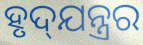
ହୃଦ୍‍ଯନ୍ତ୍ରର